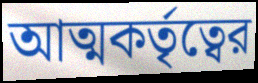
আত্মকর্তৃত্বের